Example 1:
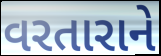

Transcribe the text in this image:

વરતારાને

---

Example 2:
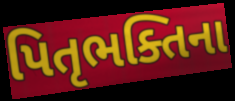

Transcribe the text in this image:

પિતૃભક્તિના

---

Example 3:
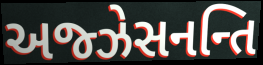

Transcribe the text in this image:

અજ્ઝેસનન્તિ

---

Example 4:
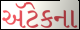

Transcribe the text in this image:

ઍટેકના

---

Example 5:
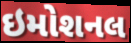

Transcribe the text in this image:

ઇમોશનલ